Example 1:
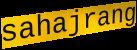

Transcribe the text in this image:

sahajrang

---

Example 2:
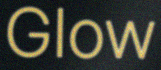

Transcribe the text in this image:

Glow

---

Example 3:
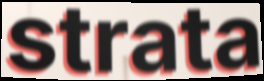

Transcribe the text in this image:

strata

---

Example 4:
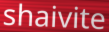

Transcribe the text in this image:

shaivite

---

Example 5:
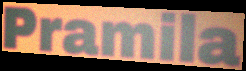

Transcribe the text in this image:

Pramila